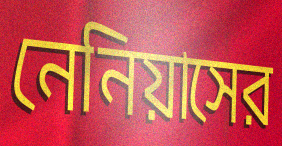
নেনিয়াসের